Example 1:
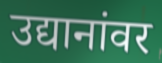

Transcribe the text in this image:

उद्यानांवर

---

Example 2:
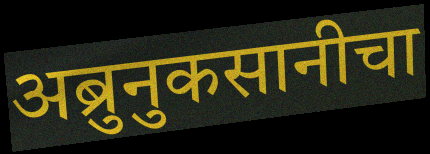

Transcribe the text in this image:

अब्रुनुकसानीचा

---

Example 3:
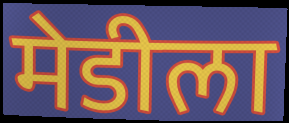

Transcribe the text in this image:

मेडीला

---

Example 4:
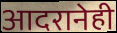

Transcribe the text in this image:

आदरानेही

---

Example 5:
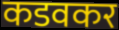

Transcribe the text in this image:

कडवकर